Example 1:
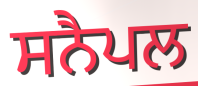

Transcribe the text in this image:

ਸਨੈਪਲ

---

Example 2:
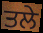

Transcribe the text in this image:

ਤਲੇ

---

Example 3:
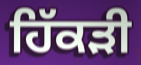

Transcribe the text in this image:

ਹਿੱਕੜੀ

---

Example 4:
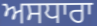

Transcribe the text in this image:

ਅਸਧਾਰਾ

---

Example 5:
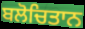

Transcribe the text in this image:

ਬਲੋਚਿਤਾਨ